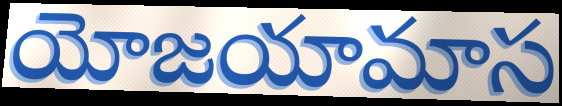
యోజయామాస